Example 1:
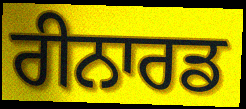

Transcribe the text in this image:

ਰੀਨਾਰਡ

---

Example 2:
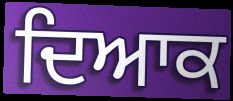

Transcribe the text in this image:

ਦਿਆਕ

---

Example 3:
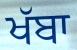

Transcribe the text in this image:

ਖੱਬਾ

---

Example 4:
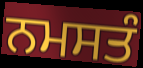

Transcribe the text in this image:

ਨਮਸਤੰ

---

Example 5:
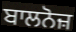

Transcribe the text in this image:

ਬਾਲਨੋਜ਼